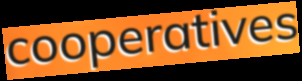
cooperatives